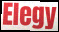
Elegy